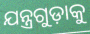
ଯନ୍ତ୍ରଗୁଡ଼ାକୁ